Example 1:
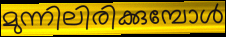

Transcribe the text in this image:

മുന്നിലിരിക്കുമ്പോൾ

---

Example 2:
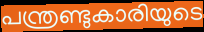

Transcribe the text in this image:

പന്ത്രണ്ടുകാരിയുടെ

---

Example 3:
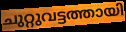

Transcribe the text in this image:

ചുറ്റുവട്ടത്തായി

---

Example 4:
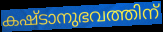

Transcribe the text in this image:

കഷ്ടാനുഭവത്തിന്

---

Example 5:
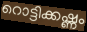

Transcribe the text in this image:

റൊട്ടിക്കഷ്ണം